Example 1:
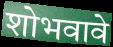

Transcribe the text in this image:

शोभवावे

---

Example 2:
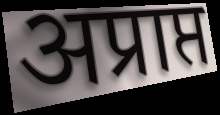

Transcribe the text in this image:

अप्राप्त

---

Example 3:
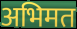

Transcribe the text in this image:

अभिमत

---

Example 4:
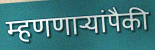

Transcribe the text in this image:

म्हणणाऱ्यांपैकी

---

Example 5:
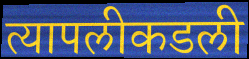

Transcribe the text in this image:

त्यापलीकडली